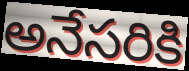
అనేసరికి